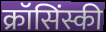
क्रॉसिंस्की